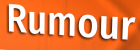
Rumour